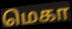
மெகா